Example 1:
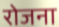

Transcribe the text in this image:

रोजना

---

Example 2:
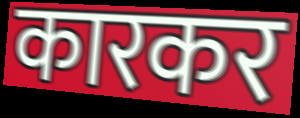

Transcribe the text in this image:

कारकर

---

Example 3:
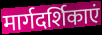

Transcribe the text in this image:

मार्गदर्शिकाएं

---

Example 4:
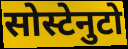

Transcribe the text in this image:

सोस्टेनुटो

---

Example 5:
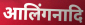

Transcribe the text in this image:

आलिंगनादि